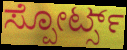
ಸ್ಪೋರ್ಟ್ಸ್